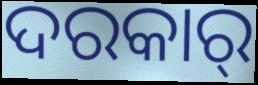
ଦରକାର୍